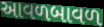
આવળબાવળ